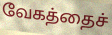
வேகத்தைச்